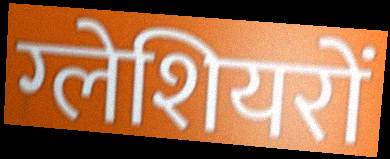
ग्‍लेशियरों